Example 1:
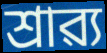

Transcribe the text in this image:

শ্ৰাৱ্য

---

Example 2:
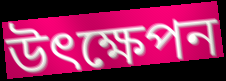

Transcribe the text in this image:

উৎক্ষেপন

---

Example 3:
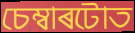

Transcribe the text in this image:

চেম্বাৰটোত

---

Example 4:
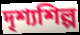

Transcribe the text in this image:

দৃশ্যশিল্প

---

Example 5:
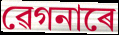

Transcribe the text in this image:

ৱেগনাৰে